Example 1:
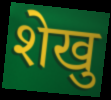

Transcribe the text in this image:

शेखु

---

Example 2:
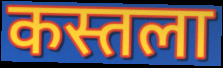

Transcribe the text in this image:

कस्तला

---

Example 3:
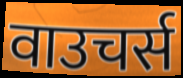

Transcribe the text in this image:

वाउचर्स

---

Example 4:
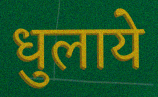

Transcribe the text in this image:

धुलाये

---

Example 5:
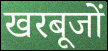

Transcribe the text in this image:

खरबूजों